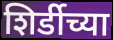
शिर्डीच्या